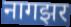
नागझर